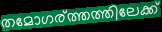
തമോഗര്ത്തത്തിലേക്ക്